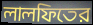
লালফিতের